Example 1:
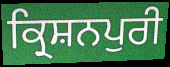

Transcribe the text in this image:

ਕ੍ਰਿਸ਼ਨਪੁਰੀ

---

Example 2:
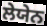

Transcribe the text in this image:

ਲੇਯੇਨ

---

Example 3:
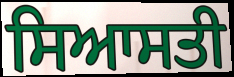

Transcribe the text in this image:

ਸਿਆਸਤੀ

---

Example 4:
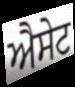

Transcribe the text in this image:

ਐਸੇਟ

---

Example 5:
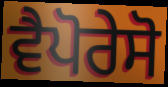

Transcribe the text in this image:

ਵੈਪੋਰੇਸੋ